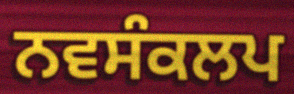
ਨਵਸੰਕਲਪ